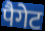
पैगेट